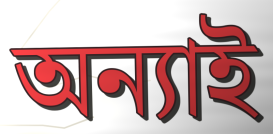
অন্যাই